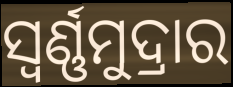
ସ୍ୱର୍ଣ୍ଣମୁଦ୍ରାର